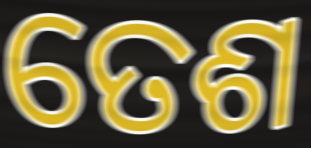
ତେଶ